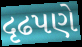
દૃઢપણે